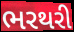
ભરથરી